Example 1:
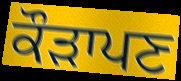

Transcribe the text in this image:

ਕੌੜਾਪਣ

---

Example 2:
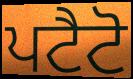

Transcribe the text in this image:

ਪਟੈਟੋ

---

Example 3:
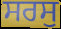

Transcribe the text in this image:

ਸਰਸੁ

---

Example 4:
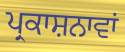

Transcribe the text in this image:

ਪ੍ਰਕਾਸ਼ਨਾਵਾਂ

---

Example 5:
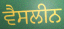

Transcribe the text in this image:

ਵੈਸਲੀਨ